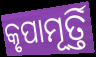
କୃପାମୂର୍ତ୍ତି